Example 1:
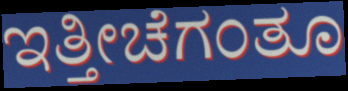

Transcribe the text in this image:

ಇತ್ತೀಚೆಗಂತೂ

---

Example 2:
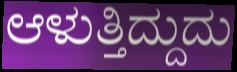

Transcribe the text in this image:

ಆಳುತ್ತಿದ್ದುದು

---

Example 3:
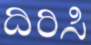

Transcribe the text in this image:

ದಿರಿಸಿ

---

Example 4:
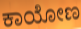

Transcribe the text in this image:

ಕಾಯೋಣ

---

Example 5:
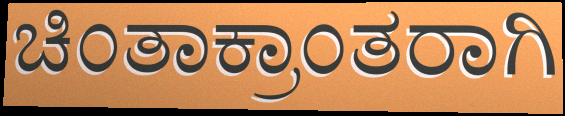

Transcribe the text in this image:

ಚಿಂತಾಕ್ರಾಂತರಾಗಿ